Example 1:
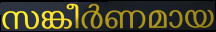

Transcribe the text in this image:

സങ്കീർണമായ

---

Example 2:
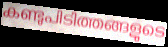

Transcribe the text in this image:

കണ്ടുപിടിത്തങ്ങളുടെ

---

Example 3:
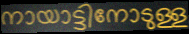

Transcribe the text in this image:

നായാട്ടിനോടുള്ള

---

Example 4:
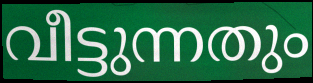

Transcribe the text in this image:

വീട്ടുന്നതും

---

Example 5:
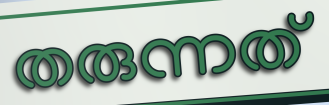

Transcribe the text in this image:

തരുന്നത്